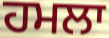
ਹਮਲਾ